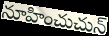
నూహించుచున్